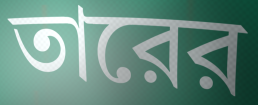
তারের